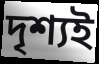
দৃশ্যই